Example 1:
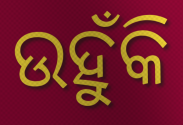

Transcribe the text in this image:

ଉହୁଁକି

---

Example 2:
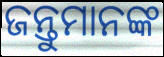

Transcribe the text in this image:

ଜନ୍ତୁମାନଙ୍କ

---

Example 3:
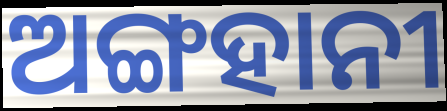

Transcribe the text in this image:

ଅଙ୍ଗହାନୀ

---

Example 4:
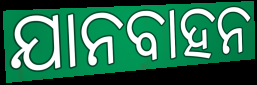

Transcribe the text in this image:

ଯାନବାହନ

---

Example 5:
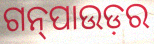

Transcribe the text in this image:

ଗନ୍‍ପାଉଡ଼ର